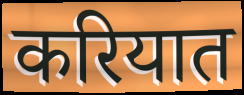
करियात